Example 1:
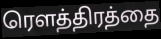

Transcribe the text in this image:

ரௌத்திரத்தை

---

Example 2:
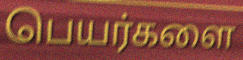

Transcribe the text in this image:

பெயர்களை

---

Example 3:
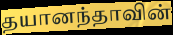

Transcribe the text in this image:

தயானந்தாவின்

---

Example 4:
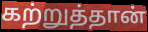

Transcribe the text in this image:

கற்றுத்தான்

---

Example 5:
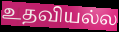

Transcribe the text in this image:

உதவியல்ல